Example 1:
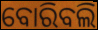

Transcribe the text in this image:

ବୋରିବଲି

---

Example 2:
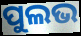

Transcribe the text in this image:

ପୁଲଭ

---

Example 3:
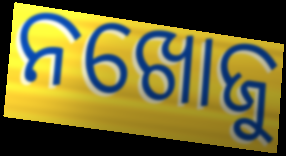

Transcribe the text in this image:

ନଖୋଜୁ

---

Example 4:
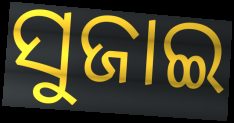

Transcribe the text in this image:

ସୁଜାଇ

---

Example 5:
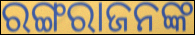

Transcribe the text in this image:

ରଙ୍ଗରାଜନଙ୍କ